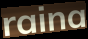
raina